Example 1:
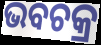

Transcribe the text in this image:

ଭବଚକ୍ର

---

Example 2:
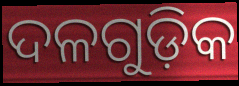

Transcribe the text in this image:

ଦଳଗୁଡ଼ିକ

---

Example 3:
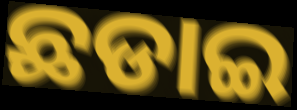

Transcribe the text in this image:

ଛଡାଇ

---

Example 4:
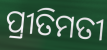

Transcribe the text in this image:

ପ୍ରୀତିମତୀ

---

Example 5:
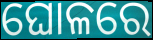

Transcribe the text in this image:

ଘୋଳରେ